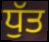
ਧੁੱਤ